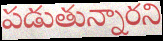
పడుతున్నారని